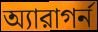
অ্যারাগর্ন